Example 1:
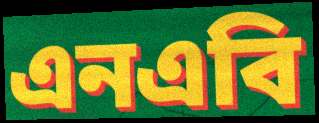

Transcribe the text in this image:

এনএবি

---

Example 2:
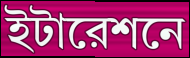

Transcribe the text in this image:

ইটারেশনে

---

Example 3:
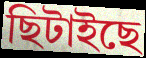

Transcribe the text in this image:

ছিটাইছে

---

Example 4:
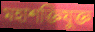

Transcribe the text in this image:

মহাশক্তিযুক্ত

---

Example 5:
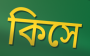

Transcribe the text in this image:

কিসে